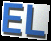
EL